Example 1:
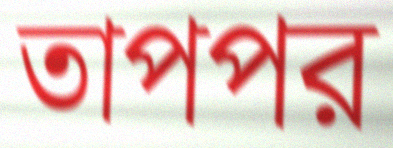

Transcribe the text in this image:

তাপপর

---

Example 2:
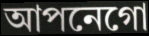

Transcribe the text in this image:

আপনেগো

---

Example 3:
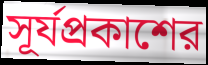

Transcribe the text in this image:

সূর্যপ্রকাশের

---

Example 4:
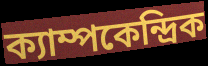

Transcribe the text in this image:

ক্যাম্পকেন্দ্রিক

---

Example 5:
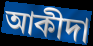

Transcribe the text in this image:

আকীদা